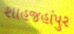
શાહજહાંપુર